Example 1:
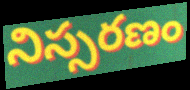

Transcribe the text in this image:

నిస్సరణం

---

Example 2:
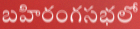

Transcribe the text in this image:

బహిరంగసభలో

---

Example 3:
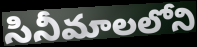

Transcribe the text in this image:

సినీమాలలోని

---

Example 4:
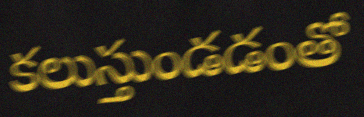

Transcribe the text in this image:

కలుస్తుండడంతో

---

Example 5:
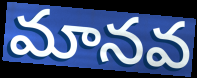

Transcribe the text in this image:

మానవ